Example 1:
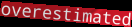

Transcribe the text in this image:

overestimated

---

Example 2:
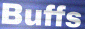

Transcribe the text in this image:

Buffs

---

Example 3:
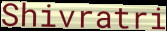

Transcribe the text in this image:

Shivratri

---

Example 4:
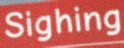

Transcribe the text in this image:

Sighing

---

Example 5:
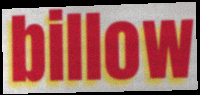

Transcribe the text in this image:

billow